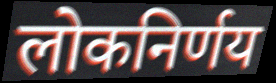
लोकनिर्णय